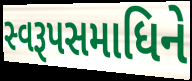
સ્વરૂપસમાધિને